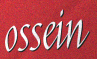
ossein